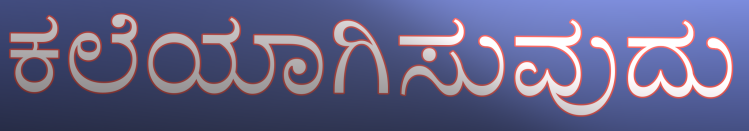
ಕಲೆಯಾಗಿಸುವುದು